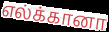
எல்க்கானா